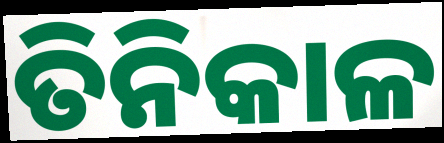
ତିନିକାଳ